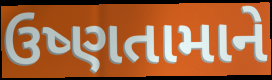
ઉષ્ણતામાને